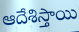
ఆదేశిస్తాయి